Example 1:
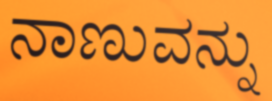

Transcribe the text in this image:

ನಾಣುವನ್ನು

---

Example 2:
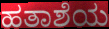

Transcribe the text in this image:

ಹತಾಶೆಯ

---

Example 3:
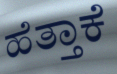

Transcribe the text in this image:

ಹೆತ್ತಾಕೆ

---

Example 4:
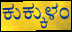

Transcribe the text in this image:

ಕುಕ್ಕುಳಂ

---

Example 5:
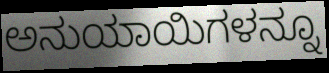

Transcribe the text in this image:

ಅನುಯಾಯಿಗಳನ್ನೂ